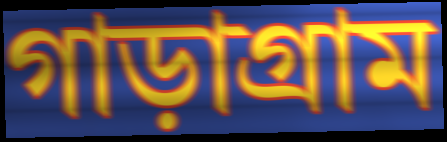
গাড়াগ্রাম